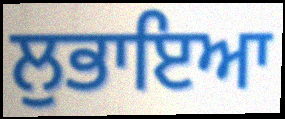
ਲੁਭਾਇਆ